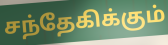
சந்தேகிக்கும்